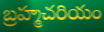
బ్రహ్మచరియం